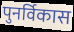
पुनर्विकास